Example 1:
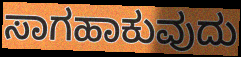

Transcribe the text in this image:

ಸಾಗಹಾಕುವುದು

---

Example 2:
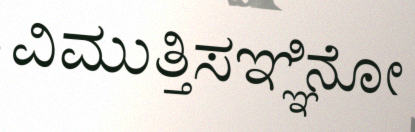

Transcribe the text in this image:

ವಿಮುತ್ತಿಸಞ್ಞಿನೋ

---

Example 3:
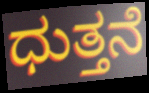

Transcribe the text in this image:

ಧುತ್ತನೆ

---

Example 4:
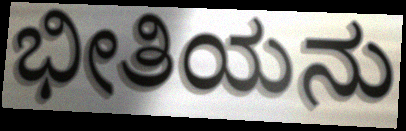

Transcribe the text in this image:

ಭೀತಿಯನು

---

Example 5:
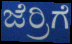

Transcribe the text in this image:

ಜೆರ್ರಿಗೆ